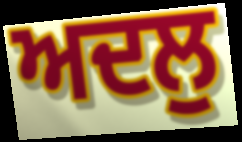
ਅਦਲੁ